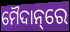
ମୈଦାନ୍‌ରେ